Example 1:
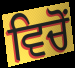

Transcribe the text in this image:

ਵਿਚੋਂ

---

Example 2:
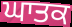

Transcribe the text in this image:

ਘਾਤਕ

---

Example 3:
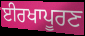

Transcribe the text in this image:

ਈਰਖਾਪੂਰਣ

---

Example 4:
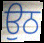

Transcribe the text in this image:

ਉਠ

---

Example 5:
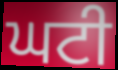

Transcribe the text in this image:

ਘਟੀ